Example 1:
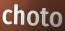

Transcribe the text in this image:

choto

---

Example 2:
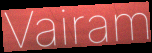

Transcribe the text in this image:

Vairam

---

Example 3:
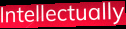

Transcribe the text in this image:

Intellectually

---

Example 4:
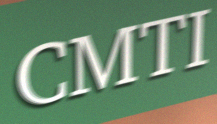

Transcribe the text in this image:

CMTI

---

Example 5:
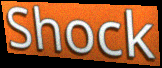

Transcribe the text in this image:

Shock